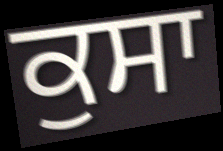
ਕੁਸਾ